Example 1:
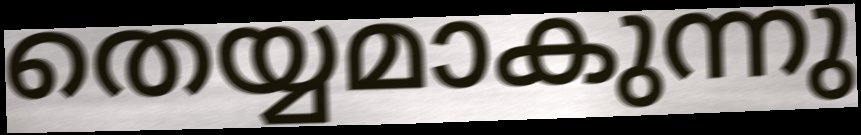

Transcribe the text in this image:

തെയ്യമാകുന്നു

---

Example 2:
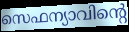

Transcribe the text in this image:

സെഫന്യാവിന്റെ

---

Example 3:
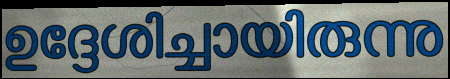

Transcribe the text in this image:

ഉദ്ദേശിച്ചായിരുന്നു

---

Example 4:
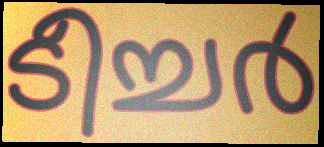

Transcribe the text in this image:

ടീച്ചർ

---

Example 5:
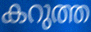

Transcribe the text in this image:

കറുത്ത